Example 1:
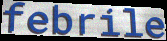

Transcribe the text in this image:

febrile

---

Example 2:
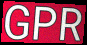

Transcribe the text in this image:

GPR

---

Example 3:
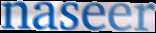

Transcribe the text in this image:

naseer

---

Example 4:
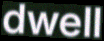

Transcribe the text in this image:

dwell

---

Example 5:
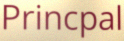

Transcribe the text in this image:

Princpal